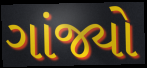
ગાંજ્યો